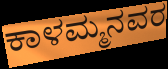
ಕಾಳಮ್ಮನವರ